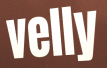
velly